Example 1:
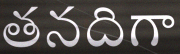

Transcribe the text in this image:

తనదిగా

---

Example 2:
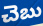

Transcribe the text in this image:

చెబు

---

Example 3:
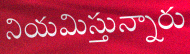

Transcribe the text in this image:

నియమిస్తున్నారు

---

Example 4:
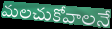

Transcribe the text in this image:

మలచుకోవాలనే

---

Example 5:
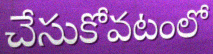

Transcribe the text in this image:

చేసుకోవటంలో